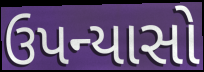
ઉપન્યાસો